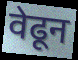
वेढून